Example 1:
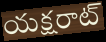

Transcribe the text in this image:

యక్షరాట్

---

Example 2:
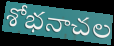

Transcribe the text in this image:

శోభనాచల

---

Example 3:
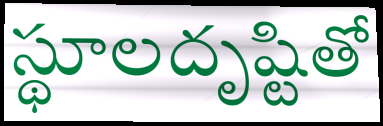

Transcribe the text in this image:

స్థూలదృష్టితో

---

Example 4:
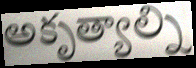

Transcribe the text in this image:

అకృత్యాల్ని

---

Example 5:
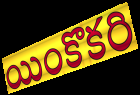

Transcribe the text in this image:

యింకొకరి